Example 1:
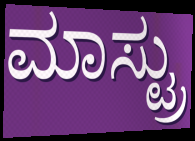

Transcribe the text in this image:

ಮಾಸ್ಟ್ರು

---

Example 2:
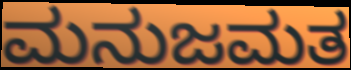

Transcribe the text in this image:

ಮನುಜಮತ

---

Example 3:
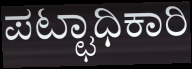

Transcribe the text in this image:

ಪಟ್ಟಾಧಿಕಾರಿ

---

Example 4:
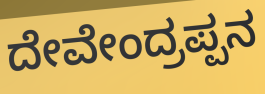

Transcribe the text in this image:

ದೇವೇಂದ್ರಪ್ಪನ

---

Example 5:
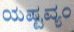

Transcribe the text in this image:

ಯಷ್ಟವ್ಯಂ